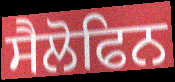
ਸੈਲੋਫਿਨ